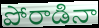
పోరాడినా